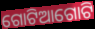
ଗୋଟିଆଗୋଟି